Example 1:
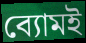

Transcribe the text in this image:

ব্যোমই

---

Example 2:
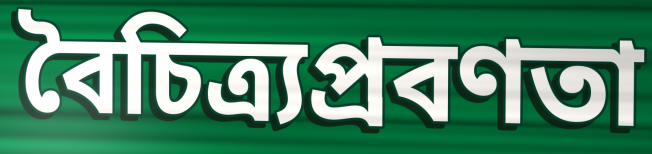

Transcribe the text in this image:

বৈচিত্র্যপ্রবণতা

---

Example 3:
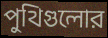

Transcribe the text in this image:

পুথিগুলোর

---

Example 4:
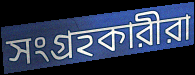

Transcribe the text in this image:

সংগ্রহকারীরা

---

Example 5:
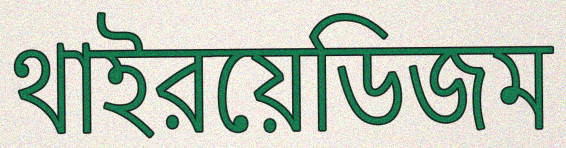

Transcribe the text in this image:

থাইরয়েডিজম